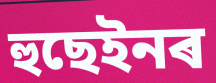
হুছেইনৰ